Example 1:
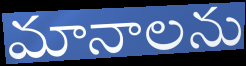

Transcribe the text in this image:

మానాలను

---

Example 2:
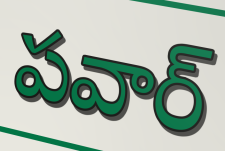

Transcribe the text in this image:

పవార్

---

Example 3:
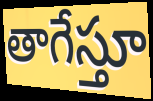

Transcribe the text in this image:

తాగేస్తూ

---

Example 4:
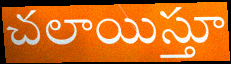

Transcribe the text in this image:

చలాయిస్తూ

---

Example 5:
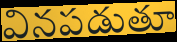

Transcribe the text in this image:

వినపడుతూ